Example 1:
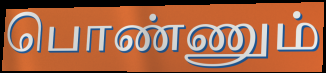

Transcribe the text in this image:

பொண்ணும்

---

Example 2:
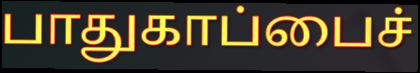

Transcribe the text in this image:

பாதுகாப்பைச்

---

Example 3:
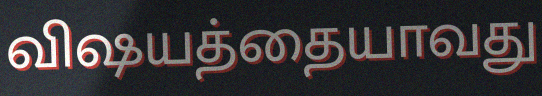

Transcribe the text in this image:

விஷயத்தையாவது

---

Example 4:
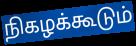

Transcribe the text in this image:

நிகழக்கூடும்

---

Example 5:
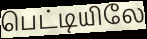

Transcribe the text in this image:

பெட்டியிலே